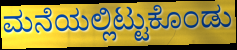
ಮನೆಯಲ್ಲಿಟ್ಟುಕೊಂಡು